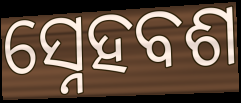
ସ୍ନେହବଶ